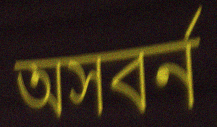
অসবর্ন